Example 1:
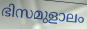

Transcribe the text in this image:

ഭിസമുളാലം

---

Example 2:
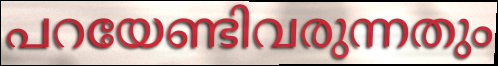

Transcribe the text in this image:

പറയേണ്ടിവരുന്നതും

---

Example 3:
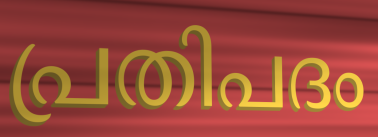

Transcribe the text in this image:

പ്രതിപദം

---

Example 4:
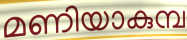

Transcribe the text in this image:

മണിയാകുമ്പ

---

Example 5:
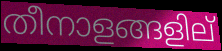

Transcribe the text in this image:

തീനാളങ്ങളില്